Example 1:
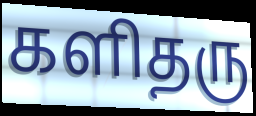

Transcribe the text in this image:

களிதரு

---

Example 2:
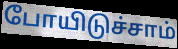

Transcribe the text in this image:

போயிடுச்சாம்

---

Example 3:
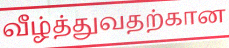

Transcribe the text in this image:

வீழ்த்துவதற்கான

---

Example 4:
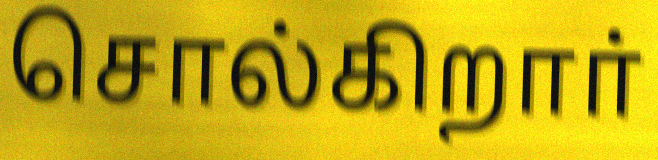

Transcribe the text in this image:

சொல்கிறார்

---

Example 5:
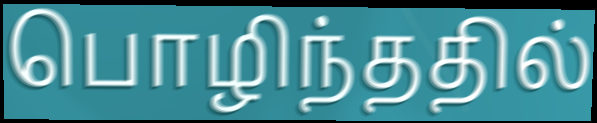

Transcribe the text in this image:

பொழிந்ததில்